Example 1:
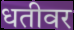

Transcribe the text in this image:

धतीवर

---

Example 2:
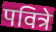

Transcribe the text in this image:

पवित्रे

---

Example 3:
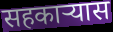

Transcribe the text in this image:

सहकार्‍यास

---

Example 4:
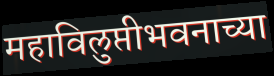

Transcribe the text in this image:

महाविलुप्तीभवनाच्या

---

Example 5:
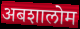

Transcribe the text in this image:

अबशालोम